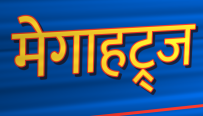
मेगाहट्र्ज